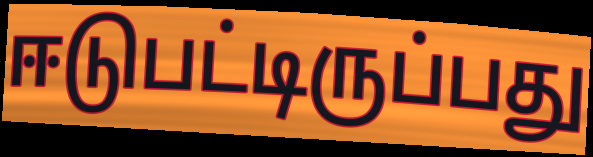
ஈடுபட்டிருப்பது